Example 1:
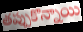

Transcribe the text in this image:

తప్పుకొన్నాయి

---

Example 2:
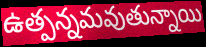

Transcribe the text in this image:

ఉత్పన్నమవుతున్నాయి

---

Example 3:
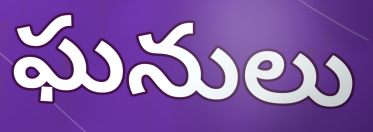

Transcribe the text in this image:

ఘనులు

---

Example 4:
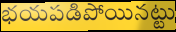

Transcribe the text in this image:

భయపడిపోయినట్టు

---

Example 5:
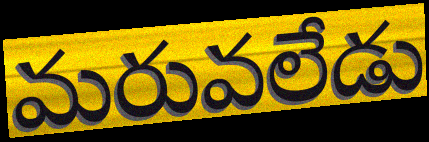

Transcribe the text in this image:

మరువలేడు